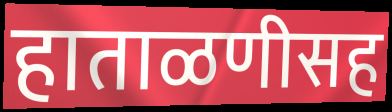
हाताळणीसह